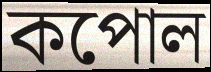
কপোল